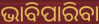
ଭାବିପାରିବା